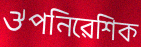
ঔপনিৱেশিক